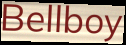
Bellboy